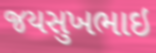
જયસુખભાઇ